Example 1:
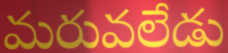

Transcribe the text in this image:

మరువలేడు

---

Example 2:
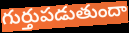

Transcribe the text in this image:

గుర్తుపడుతుందా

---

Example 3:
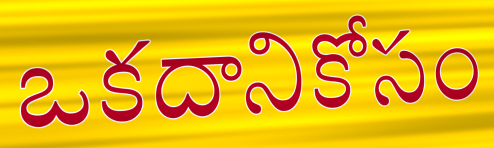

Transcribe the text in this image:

ఒకదానికోసం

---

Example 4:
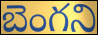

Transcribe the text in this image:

బెంగని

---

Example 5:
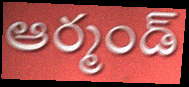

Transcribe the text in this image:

ఆర్మండ్